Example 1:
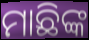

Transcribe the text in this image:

ମାଛିଙ୍କ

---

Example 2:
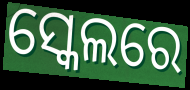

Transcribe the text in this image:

ସ୍କେଲରେ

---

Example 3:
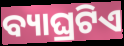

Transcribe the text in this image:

ବ୍ୟାଘ୍ରଟିଏ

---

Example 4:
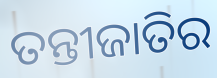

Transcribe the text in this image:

ତନ୍ତୀଜାତିର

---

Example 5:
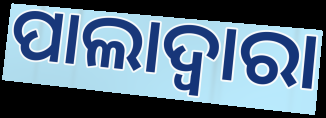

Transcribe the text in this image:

ପାଲାଦ୍ୱାରା